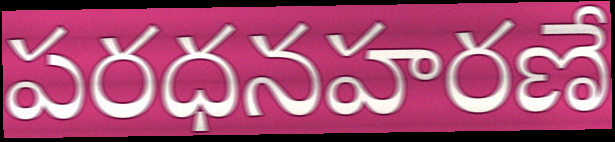
పరధనహరణే